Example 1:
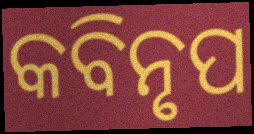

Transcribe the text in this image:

କବିନୃପ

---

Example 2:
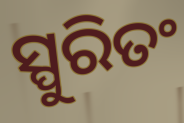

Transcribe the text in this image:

ସ୍ପୁରିତଂ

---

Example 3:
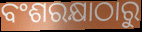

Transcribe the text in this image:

ବଂଶରକ୍ଷାଠାରୁ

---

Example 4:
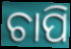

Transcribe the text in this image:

ଚାପି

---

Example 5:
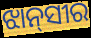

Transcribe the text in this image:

ଝାନ୍‌ସୀର